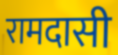
रामदासी